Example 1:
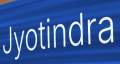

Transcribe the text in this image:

Jyotindra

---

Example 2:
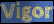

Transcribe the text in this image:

Vigor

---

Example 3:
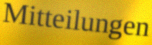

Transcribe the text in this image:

Mitteilungen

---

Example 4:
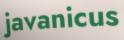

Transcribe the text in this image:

javanicus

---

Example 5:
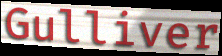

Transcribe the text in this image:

Gulliver